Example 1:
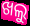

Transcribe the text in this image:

ଖଲୁ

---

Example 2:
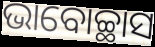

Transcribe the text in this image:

ଭାବୋଚ୍ଛାସ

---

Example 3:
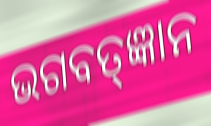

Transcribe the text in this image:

ଭଗବତ୍‌ଜ୍ଞାନ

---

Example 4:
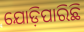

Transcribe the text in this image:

ଯୋଡ଼ିପାରିଛି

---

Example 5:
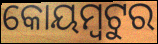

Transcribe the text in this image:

କୋୟମ୍ବଟୁର